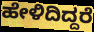
ಹೇಳಿದಿದ್ದರೆ